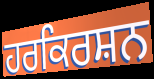
ਹਰਕਿਰਸ਼ਨ